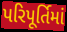
પરિપૂર્તિમાં